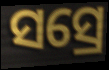
ସସ୍ରେ